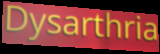
Dysarthria